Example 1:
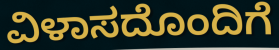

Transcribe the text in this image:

ವಿಳಾಸದೊಂದಿಗೆ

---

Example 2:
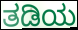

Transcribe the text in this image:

ತಡಿಯ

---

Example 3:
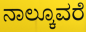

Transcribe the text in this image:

ನಾಲ್ಕೂವರೆ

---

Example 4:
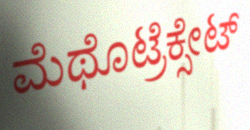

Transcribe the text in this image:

ಮೆಥೊಟ್ರೆಕ್ಸೇಟ್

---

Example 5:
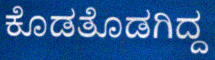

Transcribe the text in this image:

ಕೊಡತೊಡಗಿದ್ದ